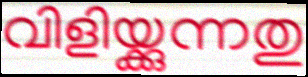
വിളിയ്ക്കുന്നതു